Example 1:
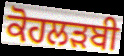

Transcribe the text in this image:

ਕੋਹਲੜਬੀ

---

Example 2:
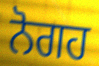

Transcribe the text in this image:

ਨੋਗਹ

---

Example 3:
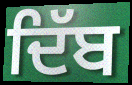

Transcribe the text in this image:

ਦਿੱਬ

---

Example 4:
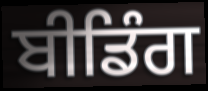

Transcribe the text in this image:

ਬੀਡਿੰਗ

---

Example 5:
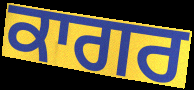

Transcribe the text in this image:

ਕਾਗਰ